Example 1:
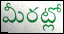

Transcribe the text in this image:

మీరట్లో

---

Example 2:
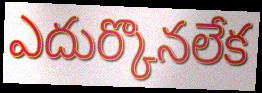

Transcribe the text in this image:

ఎదుర్కొనలేక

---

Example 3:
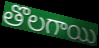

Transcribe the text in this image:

తొలగాయి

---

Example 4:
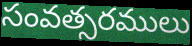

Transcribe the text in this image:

సంవత్సరములు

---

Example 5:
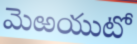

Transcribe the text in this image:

మెఱయుటో